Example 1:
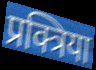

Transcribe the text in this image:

प्रक्त्रिया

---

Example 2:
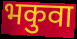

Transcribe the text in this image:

भकुवा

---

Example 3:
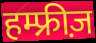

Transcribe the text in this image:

हम्फ्रीज़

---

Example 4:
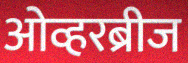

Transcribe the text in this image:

ओव्हरब्रीज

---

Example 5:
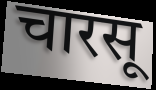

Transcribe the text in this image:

चारसू